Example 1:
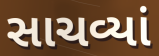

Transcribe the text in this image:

સાચવ્યાં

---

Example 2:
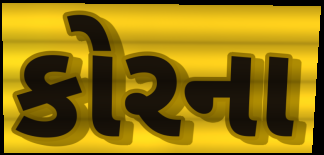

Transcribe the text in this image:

કોરના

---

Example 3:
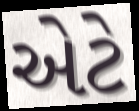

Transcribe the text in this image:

એટે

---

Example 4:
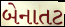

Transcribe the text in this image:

બેનાતટ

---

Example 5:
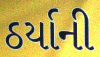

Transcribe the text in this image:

ઠર્યાની